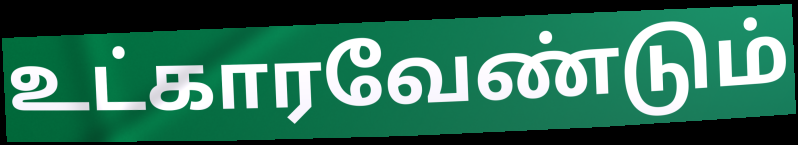
உட்காரவேண்டும்